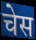
चेस